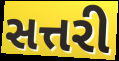
સત્તરી